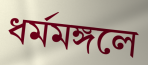
ধর্মমঙ্গলে